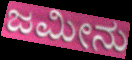
ಜಮೀನು